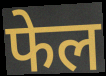
फेल